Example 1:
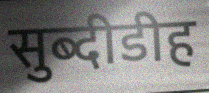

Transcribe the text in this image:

सुब्दीडीह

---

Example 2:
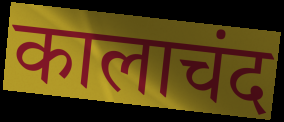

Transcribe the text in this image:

कालाचंद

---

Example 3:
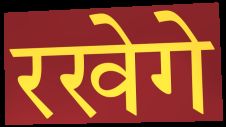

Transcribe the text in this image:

रखेगे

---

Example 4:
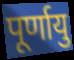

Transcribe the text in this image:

पूर्णायु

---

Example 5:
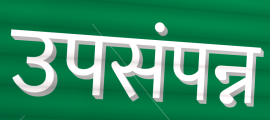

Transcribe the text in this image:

उपसंपन्न